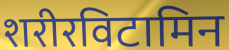
शरीरविटामिन